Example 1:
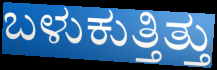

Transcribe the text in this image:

ಬಳುಕುತ್ತಿತ್ತು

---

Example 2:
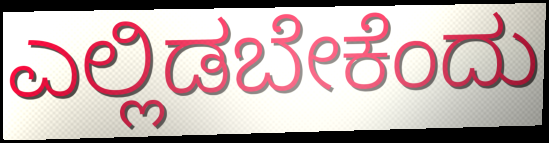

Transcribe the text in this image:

ಎಲ್ಲಿಡಬೇಕೆಂದು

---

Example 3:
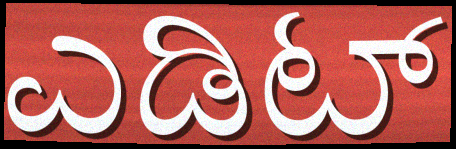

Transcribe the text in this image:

ಎಡಿಟ್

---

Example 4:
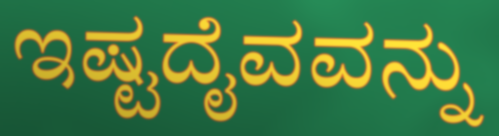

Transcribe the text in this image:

ಇಷ್ಟದೈವವನ್ನು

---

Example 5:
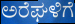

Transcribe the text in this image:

ಅರೆಘಳಿಗೆ